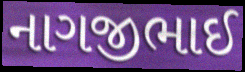
નાગજીભાઈ